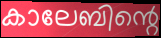
കാലേബിന്റെ